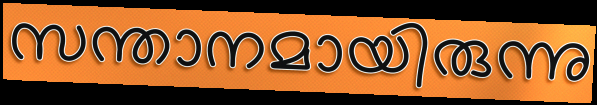
സന്താനമായിരുന്നു